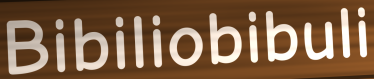
Bibiliobibuli